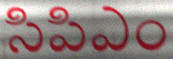
సిపిఎం